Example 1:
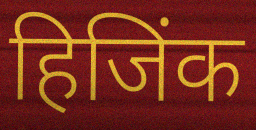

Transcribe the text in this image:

हिजिंक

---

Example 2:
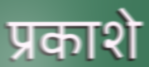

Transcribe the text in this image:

प्रकाशे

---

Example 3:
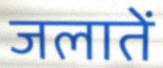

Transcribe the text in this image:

जलातें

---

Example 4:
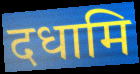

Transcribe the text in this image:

दधामि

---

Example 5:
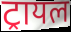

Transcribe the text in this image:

ट्रायल